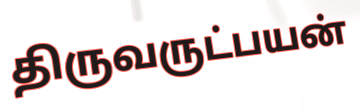
திருவருட்பயன்